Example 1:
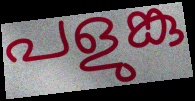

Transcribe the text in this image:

പളുങ്കു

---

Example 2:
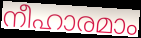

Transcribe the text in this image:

നീഹാരമാം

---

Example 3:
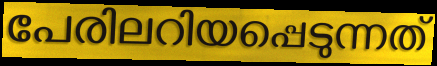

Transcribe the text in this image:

പേരിലറിയപ്പെടുന്നത്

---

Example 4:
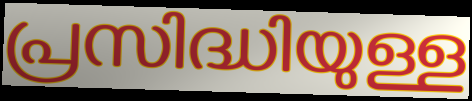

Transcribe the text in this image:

പ്രസിദ്ധിയുള്ള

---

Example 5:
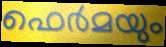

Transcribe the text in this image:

ഫെർമയും